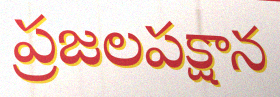
ప్రజలపక్షాన